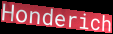
Honderich